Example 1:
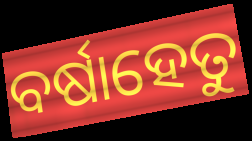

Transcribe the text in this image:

ବର୍ଷାହେତୁ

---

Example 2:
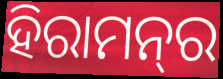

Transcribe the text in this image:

ହିରାମନ୍‍ର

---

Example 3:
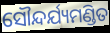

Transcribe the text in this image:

ସୌନ୍ଦର୍ଯ୍ୟମଣ୍ଡିତ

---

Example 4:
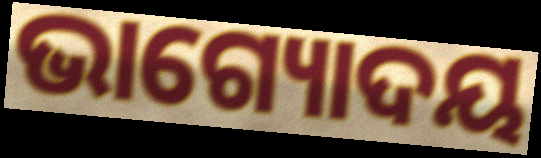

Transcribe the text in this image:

ଭାଗ୍ୟୋଦୟ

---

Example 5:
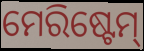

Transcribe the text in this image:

ମେରିଷ୍ଟେମ୍